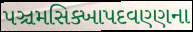
પઞ્ચમસિક્ખાપદવણ્ણના